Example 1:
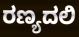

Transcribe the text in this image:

ರಣ್ಯದಲಿ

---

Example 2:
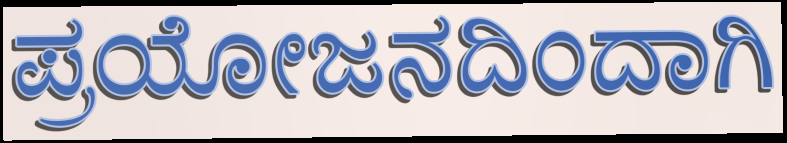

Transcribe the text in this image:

ಪ್ರಯೋಜನದಿಂದಾಗಿ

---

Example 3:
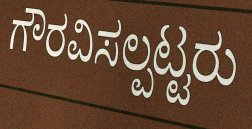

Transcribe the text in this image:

ಗೌರವಿಸಲ್ಪಟ್ಟರು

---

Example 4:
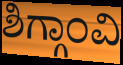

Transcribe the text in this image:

ಶಿಗ್ಗಾಂವಿ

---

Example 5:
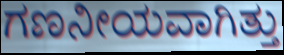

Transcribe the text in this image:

ಗಣನೀಯವಾಗಿತ್ತು